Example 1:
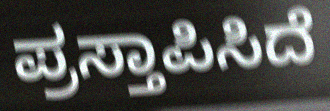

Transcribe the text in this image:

ಪ್ರಸ್ತಾಪಿಸಿದೆ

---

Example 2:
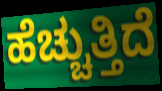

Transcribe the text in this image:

ಹೆಚ್ಚುತ್ತಿದೆ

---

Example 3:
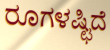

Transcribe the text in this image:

ರೂಗಳಷ್ಟಿದೆ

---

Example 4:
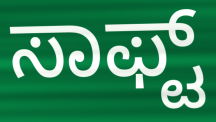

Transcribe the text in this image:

ಸಾಫ್ಟ್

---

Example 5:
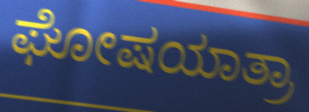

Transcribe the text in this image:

ಘೋಷಯಾತ್ರಾ